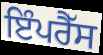
ਇੰਪਰੈੱਸ